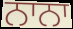
ਨਾਨਾ